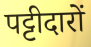
पट्टीदारों